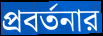
প্রবর্তনার